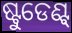
ଷ୍ଟୁଡେଣ୍ଟ୍